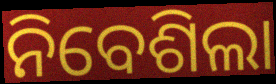
ନିବେଶିଲା